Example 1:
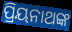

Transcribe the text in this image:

ପ୍ରିୟନାଥଙ୍କ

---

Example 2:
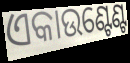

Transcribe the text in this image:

ଏକାଉଣ୍ଟେଣ୍ଟ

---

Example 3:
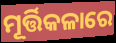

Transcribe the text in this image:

ମୂର୍ତ୍ତିକଳାରେ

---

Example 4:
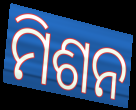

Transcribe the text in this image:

ମିଶନ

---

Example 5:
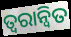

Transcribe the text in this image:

ତ୍ୱରାନ୍ୱିତ